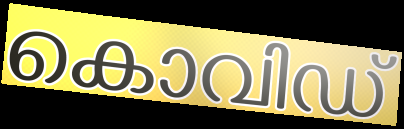
കൊവിഡ്